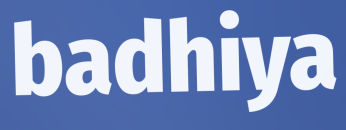
badhiya